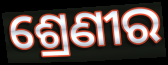
ଶ୍ରେଣୀର